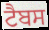
ਟੈਬਸ